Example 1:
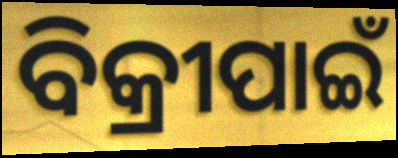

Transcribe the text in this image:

ବିକ୍ରୀପାଇଁ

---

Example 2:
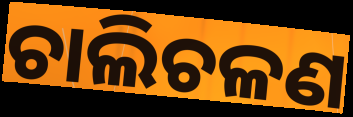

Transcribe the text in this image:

ଚାଲିଚଳଣ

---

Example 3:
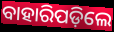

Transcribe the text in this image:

ବାହାରିପଡ଼ିଲେ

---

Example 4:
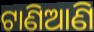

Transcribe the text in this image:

ଟାଣିଆଣି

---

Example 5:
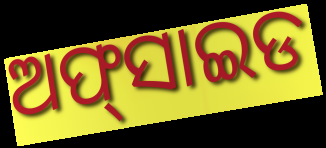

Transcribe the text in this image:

ଅଫ୍‍ସାଇଡ